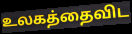
உலகத்தைவிட